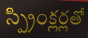
స్ప్రింక్లర్లతో